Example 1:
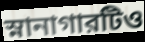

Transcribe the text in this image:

স্নানাগারটিও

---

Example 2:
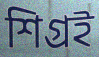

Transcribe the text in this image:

শিগ্রই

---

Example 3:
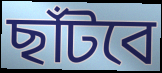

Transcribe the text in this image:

ছাঁটবে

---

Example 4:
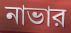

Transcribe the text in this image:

নাভার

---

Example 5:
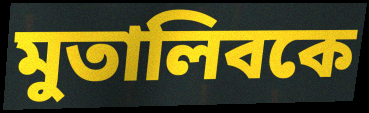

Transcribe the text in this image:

মুতালিবকে